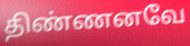
திண்ணனவே